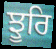
ਝੂਰਿ